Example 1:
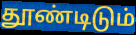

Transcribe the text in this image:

தூண்டிடும்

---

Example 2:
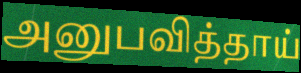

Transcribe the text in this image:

அனுபவித்தாய்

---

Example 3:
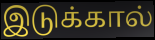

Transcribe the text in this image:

இடுக்கால்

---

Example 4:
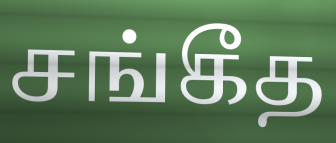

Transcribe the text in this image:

சங்கீத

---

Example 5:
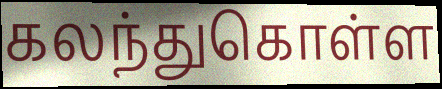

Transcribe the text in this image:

கலந்துகொள்ள